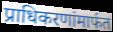
प्राधिकरणांमार्फत